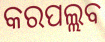
କରପଲ୍ଲବ